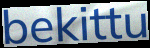
bekittu